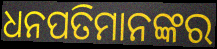
ଧନପତିମାନଙ୍କର